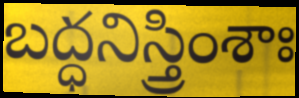
బద్ధనిస్త్రింశాః